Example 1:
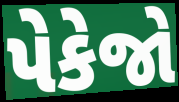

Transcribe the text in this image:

પેકેજો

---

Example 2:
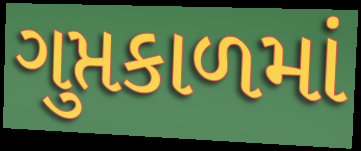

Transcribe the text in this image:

ગુપ્તકાળમાં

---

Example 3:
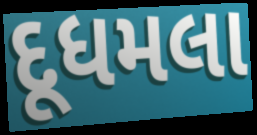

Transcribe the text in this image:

દૂધમલા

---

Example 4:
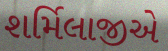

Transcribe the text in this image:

શર્મિલાજીએ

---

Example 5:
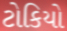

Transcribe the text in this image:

ટોકિયો